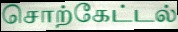
சொற்கேட்டல்